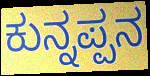
ಕುನ್ನಪ್ಪನ